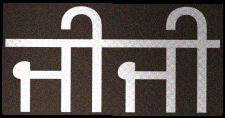
ਜੀਜੀ